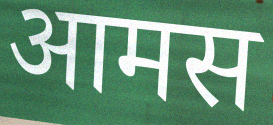
आमस